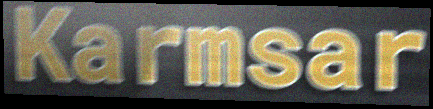
Karmsar